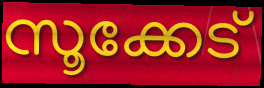
സൂക്കേട്